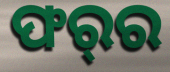
ଫର୍‌ର